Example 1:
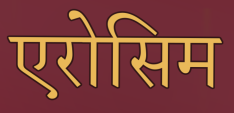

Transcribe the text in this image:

एरोसिम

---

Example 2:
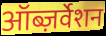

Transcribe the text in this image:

ऑब्ज़र्वेशन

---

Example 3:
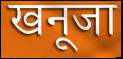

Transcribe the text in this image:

खनूजा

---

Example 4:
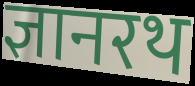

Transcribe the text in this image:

ज्ञानरथ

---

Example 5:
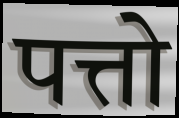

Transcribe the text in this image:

पत्तो